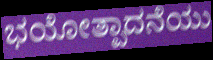
ಭಯೋತ್ಪಾದನೆಯು